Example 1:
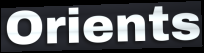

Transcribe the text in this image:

Orients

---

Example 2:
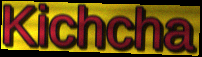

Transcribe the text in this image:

Kichcha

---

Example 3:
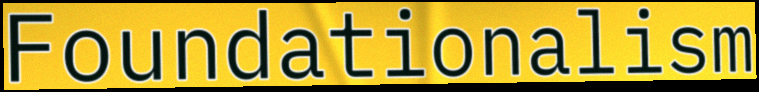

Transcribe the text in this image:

Foundationalism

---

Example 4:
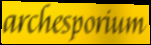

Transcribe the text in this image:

archesporium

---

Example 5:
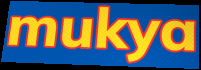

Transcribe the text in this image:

mukya